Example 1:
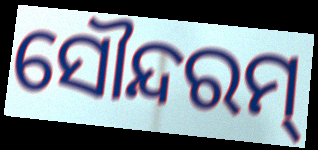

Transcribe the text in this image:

ସୌନ୍ଦରମ୍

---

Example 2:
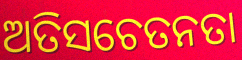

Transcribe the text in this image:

ଅତିସଚେତନତା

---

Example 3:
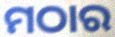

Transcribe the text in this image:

ମଠାର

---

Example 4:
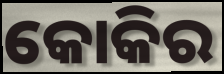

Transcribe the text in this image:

କୋକିର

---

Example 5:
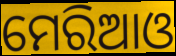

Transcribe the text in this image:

ମେରିଆଓ